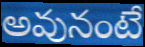
అవునంటే